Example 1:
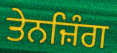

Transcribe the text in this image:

ਤੇਨਜ਼ਿੰਗ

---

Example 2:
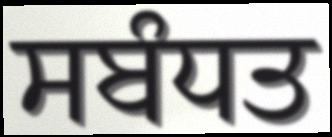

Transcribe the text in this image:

ਸਬੰਧਤ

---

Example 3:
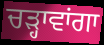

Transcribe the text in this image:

ਚੜ੍ਹਾਵਾਂਗਾ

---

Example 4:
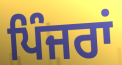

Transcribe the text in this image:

ਪਿੰਜਰਾਂ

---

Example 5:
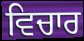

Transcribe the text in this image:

ਵਿਚਾਰ